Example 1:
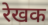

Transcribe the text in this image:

रेखक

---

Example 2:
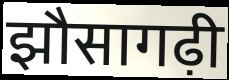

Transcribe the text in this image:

झौसागढ़ी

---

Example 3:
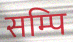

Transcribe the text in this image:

सम्पि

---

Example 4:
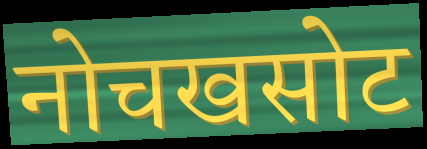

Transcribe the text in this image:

नोचखसोट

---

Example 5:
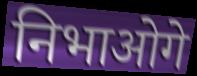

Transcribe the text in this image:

निभाओगे